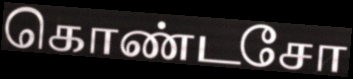
கொண்டசோ